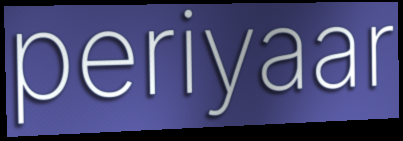
periyaar